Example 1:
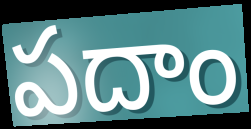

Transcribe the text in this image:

పదాం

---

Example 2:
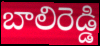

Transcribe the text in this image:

బాలిరెడ్డి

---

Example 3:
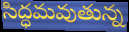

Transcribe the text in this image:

సిద్ధమవుతున్న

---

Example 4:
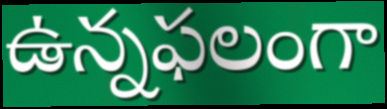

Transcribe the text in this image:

ఉన్నఫలంగా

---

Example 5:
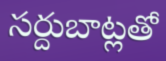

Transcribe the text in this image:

సర్దుబాట్లతో